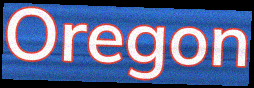
Oregon